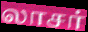
லாசர்